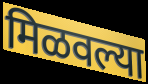
मिळवल्या